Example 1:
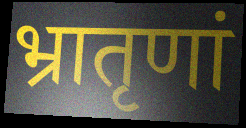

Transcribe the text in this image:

भ्रातृणां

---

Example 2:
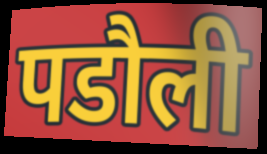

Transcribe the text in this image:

पडौली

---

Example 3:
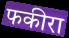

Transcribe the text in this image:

फकीरा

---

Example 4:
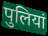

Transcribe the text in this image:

पुलियां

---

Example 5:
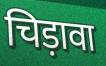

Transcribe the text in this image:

चिड़ावा